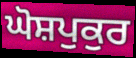
ਘੋਸ਼ਪੁਕੁਰ